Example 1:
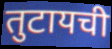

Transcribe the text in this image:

तुटायची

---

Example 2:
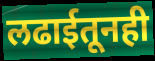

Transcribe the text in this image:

लढाईतूनही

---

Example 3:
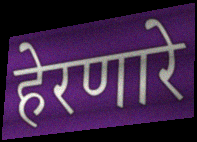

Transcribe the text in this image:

हेरणारे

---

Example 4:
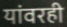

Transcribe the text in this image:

यांवरही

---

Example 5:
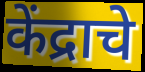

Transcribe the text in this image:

केंद्राचे